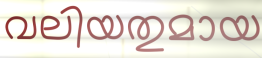
വലിയതുമായ